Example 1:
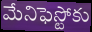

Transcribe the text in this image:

మేనిఫెస్టోకు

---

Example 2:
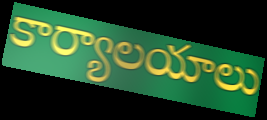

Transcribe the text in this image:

కార్యాలయాలు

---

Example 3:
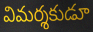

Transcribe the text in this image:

విమర్శకుడూ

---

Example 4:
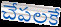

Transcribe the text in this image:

చేపలకే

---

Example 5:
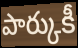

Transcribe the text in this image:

పార్కుకీ